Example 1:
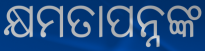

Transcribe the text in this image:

କ୍ଷମତାପନ୍ନଙ୍କ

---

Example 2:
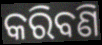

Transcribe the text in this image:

କରିବଣି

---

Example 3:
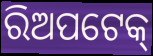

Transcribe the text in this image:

ରିଅପଟେକ୍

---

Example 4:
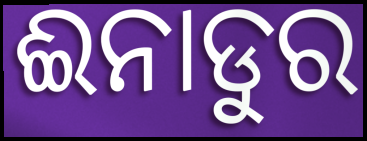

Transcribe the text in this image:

ଈନାଡୁର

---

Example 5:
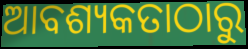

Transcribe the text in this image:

ଆବଶ୍ୟକତାଠାରୁ